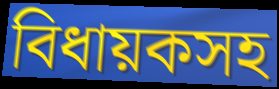
বিধায়কসহ